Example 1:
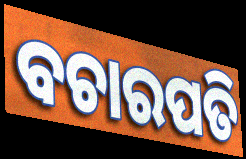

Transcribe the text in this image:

ବଚାରପତି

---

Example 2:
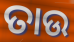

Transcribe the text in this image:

ତାଉ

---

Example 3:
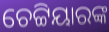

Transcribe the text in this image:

ଚେଟ୍ଟିୟାରଙ୍କ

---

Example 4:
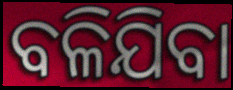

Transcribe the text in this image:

ବଳିଯିବା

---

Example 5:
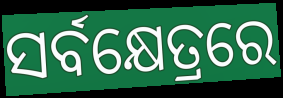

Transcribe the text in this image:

ସର୍ବକ୍ଷେତ୍ରରେ